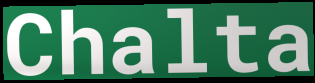
Chalta